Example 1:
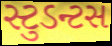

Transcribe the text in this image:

સ્ટુડન્ટસ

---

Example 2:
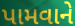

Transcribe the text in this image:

પામવાને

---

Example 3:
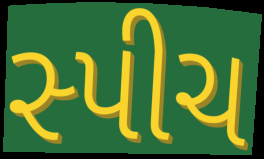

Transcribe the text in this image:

સ્પીચ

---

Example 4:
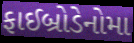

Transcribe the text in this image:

ફાઈબ્રોડેનોમા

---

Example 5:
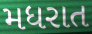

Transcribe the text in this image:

મધરાત